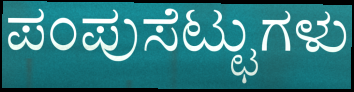
ಪಂಪುಸೆಟ್ಟುಗಳು